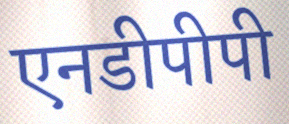
एनडीपीपी